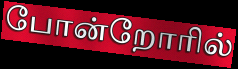
போன்றோரில்